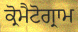
ਕ੍ਰੋਮੈਟੋਗ੍ਰਾਮ